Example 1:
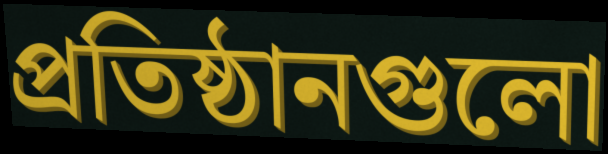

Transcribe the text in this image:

প্রতিষ্ঠানগুলো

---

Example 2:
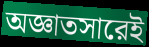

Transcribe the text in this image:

অজ্ঞাতসারেই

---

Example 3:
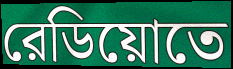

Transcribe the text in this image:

রেডিয়োতে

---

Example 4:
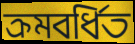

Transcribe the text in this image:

ক্রমবর্ধিত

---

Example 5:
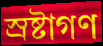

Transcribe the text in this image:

স্রষ্টাগণ